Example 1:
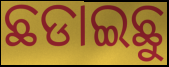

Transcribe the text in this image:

ଛଡାଇଛୁ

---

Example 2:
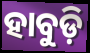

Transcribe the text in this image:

ହାବୁଡ଼ି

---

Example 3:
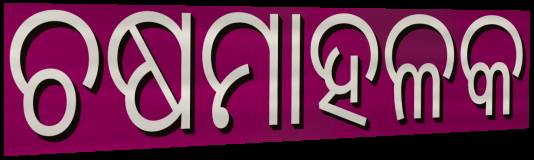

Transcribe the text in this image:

ଚଷମାହଳକ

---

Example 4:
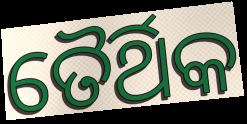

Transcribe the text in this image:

ତୈର୍ଥିକ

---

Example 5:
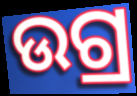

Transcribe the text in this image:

ଉଗ୍ର